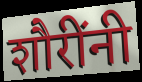
शौरींनी